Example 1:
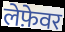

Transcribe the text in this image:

लेफ़ेवर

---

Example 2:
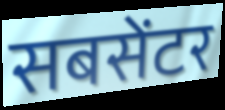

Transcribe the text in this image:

सबसेंटर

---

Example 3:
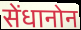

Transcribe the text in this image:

सेंधानोन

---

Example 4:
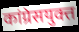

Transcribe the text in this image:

कांग्रेसयुक्त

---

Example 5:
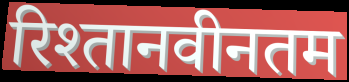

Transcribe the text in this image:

रिश्तानवीनतम